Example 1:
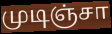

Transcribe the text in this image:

முடிஞ்சா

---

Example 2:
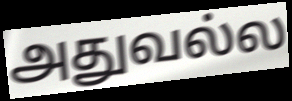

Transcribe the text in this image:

அதுவல்ல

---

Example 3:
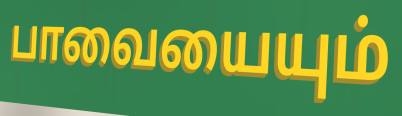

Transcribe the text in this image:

பாவையையும்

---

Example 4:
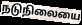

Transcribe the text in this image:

நடுநிலையை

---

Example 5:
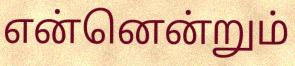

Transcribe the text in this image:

என்னென்றும்